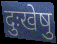
दुःखेषु